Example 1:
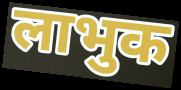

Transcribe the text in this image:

लाभुक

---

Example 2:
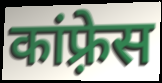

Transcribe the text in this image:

कांफ़्रेस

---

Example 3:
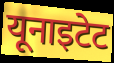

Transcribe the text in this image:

यूनाइटेट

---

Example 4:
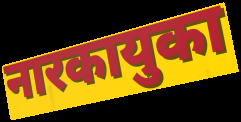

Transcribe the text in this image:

नारकायुका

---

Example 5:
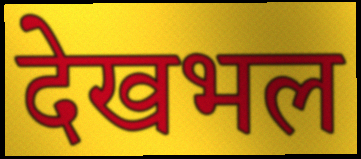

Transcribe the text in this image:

देखभल